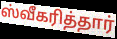
ஸ்வீகரித்தார்